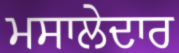
ਮਸਾਲੇਦਾਰ